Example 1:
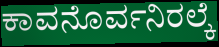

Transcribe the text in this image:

ಕಾವನೊರ್ವನಿರಲ್ಕೆ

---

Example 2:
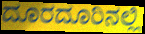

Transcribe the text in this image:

ದೂರದೂರಿನಲ್ಲಿ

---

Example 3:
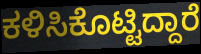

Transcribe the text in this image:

ಕಳಿಸಿಕೊಟ್ಟಿದ್ದಾರೆ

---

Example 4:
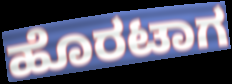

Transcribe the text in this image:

ಹೊರಟಾಗ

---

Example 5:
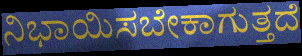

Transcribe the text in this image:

ನಿಭಾಯಿಸಬೇಕಾಗುತ್ತದೆ